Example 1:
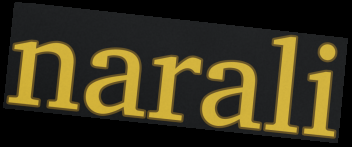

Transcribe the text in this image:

narali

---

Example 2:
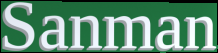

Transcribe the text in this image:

Sanman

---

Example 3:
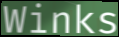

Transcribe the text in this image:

Winks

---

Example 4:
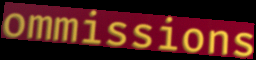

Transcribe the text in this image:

ommissions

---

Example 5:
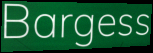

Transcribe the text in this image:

Bargess